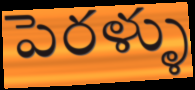
పెరళ్ళు